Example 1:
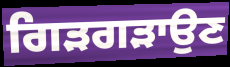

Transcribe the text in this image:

ਗਿੜਗੜਾਉਣ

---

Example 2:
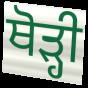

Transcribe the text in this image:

ਥੋਡ਼੍ਹੀ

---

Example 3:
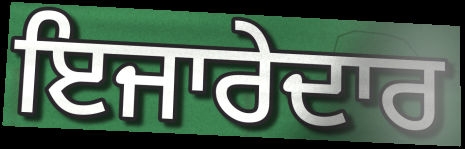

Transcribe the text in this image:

ਇਜਾਰੇਦਾਰ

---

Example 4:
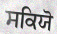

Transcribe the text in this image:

ਸਕਿਯੋ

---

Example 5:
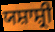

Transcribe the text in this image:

ਯਸ਼ਾਸ਼੍ਰੀ